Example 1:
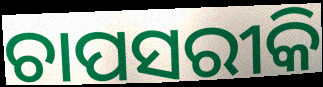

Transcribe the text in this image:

ଚାପସରୀକି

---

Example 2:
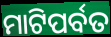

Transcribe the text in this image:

ମାଟିପର୍ବତ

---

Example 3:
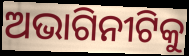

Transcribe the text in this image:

ଅଭାଗିନୀଟିକୁ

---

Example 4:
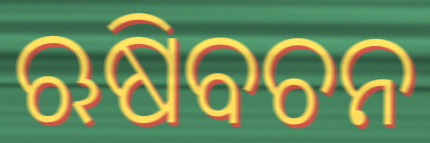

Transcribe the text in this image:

ଋଷିବଚନ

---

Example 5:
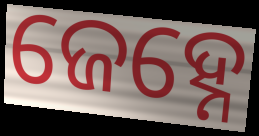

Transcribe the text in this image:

ଜେହ୍ନେ